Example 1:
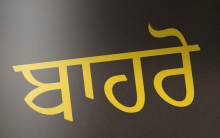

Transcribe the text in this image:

ਬਾਹਰੋ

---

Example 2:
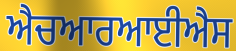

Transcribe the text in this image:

ਐਚਆਰਆਈਐਸ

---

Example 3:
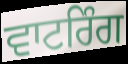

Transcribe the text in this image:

ਵਾਟਰਿੰਗ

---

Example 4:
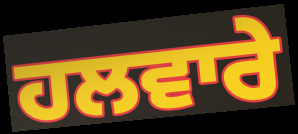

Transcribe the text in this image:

ਹਲਵਾਰੇ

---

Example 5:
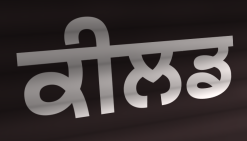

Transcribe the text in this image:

ਕੀਲਡ